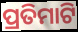
ପ୍ରତିମାଟି